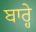
ਬਾਰ੍ਹੇ